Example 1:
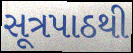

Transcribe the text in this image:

સૂત્રપાઠથી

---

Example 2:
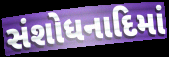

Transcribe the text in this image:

સંશોધનાદિમાં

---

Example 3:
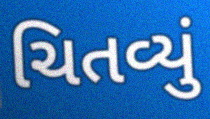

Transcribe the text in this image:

ચિતવ્યું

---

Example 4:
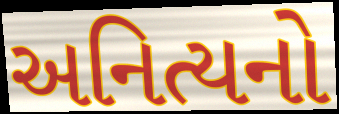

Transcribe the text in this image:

અનિત્યનો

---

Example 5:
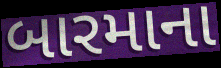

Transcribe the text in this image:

બારમાના